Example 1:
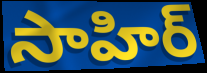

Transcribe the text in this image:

సాహిర్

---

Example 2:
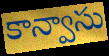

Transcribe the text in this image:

కాన్వాసు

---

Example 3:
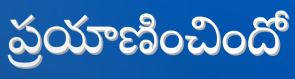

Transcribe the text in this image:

ప్రయాణించిందో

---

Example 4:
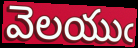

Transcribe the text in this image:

వెలయుఁ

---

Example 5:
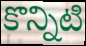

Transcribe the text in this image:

కొన్నిటి